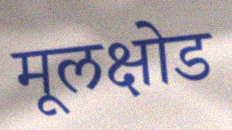
मूलक्षोड